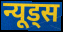
न्यूड्स